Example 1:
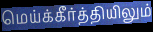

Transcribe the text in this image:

மெய்க்கீர்த்தியிலும்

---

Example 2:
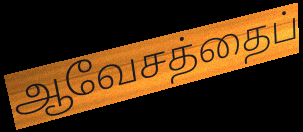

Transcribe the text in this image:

ஆவேசத்தைப்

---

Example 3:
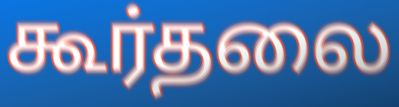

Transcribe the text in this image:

கூர்தலை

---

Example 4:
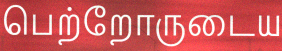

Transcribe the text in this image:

பெற்றோருடைய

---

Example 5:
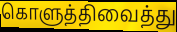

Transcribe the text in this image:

கொளுத்திவைத்து